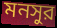
মনসুর